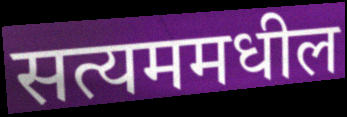
सत्यममधील